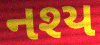
નશ્ય